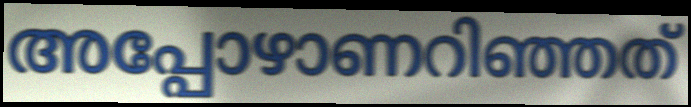
അപ്പോഴാണറിഞ്ഞത്